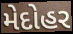
મેદોહર